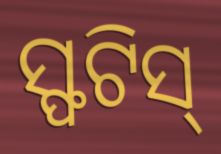
ସ୍ଫଟିସ୍